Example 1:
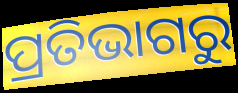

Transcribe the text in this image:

ପ୍ରତିଭାଗରୁ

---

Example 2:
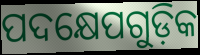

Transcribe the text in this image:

ପଦକ୍ଷେପଗୁଡ଼ିକ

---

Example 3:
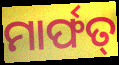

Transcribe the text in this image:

ମାର୍ଫତ୍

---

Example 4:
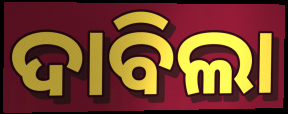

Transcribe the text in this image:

ଦାବିଲା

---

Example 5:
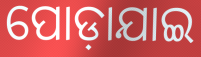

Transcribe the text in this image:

ପୋଡ଼ାଯାଇ